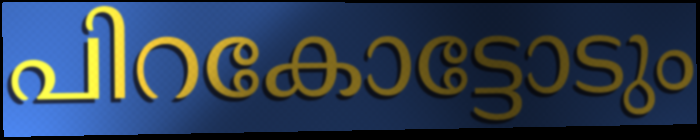
പിറകോട്ടോടും